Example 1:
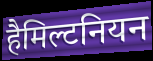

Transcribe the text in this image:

हैमिल्टनियन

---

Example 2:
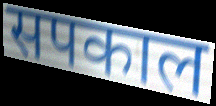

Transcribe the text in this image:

सपकाल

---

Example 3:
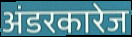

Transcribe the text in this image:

अंडरकारेज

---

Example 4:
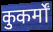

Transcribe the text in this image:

कुकर्मों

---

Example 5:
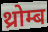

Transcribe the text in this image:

थ्रोम्ब